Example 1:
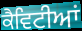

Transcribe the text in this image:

ਕੈਵਿਟੀਆਂ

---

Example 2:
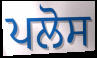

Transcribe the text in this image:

ਪਲੋਸ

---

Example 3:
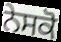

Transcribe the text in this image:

ਨੇਸਕੋ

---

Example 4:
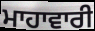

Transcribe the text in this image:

ਮਾਹਾਵਾਰੀ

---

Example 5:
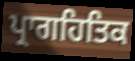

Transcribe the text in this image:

ਪ੍ਰਾਗਹਿਤਿਕ